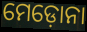
ମେଡ଼ୋନା